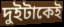
দুইটাকেই